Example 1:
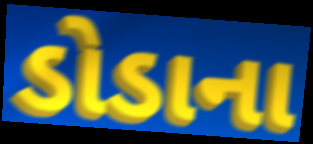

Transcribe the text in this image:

ડોડાના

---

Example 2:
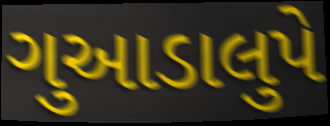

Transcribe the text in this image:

ગુઆડાલુપે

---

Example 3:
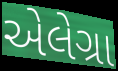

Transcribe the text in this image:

એલેગ્રા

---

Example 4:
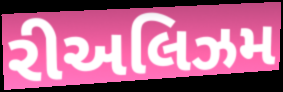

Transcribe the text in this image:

રીઅલિઝમ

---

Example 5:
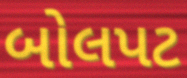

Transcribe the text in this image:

બોલપટ